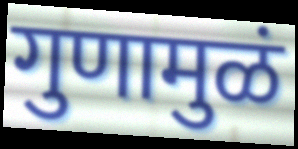
गुणामुळं